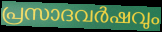
പ്രസാദവർഷവും